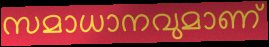
സമാധാനവുമാണ്